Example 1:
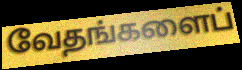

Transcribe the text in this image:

வேதங்களைப்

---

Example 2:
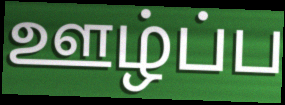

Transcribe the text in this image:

ஊழ்ப்ப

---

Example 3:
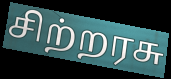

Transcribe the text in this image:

சிற்றரசு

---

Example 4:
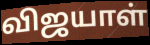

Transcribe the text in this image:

விஜயாள்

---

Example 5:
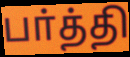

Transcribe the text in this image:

பர்த்தி